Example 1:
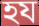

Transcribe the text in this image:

হয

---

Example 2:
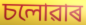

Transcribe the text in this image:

চলোৱাৰ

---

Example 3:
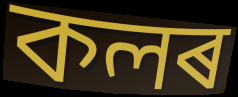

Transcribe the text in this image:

কলৰ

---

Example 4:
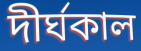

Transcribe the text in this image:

দীৰ্ঘকাল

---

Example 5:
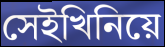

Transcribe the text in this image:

সেইখিনিয়ে